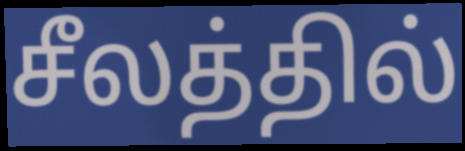
சீலத்தில்